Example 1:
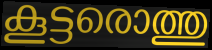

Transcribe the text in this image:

കൂട്ടരൊത്തു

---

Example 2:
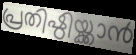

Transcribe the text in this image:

പ്രതിഷ്ഠിയ്ക്കാൻ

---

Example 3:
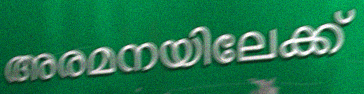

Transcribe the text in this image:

അരമനയിലേക്ക്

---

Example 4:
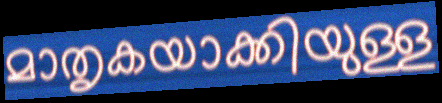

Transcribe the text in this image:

മാതൃകയാക്കിയുള്ള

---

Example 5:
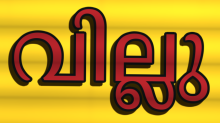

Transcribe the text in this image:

വില്ലു